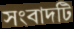
সংবাদটি